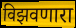
विझवणारा